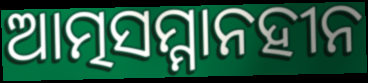
ଆତ୍ମସମ୍ମାନହୀନ